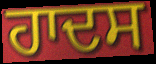
ਹਾਦਸ